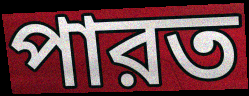
পারত